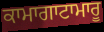
ਕਾਮਾਗਾਟਾਮਾਰੂ